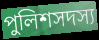
পুলিশসদস্য